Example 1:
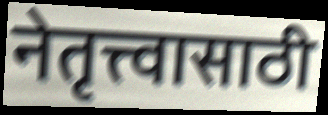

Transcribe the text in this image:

नेतृत्त्वासाठी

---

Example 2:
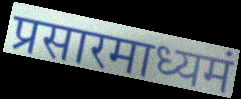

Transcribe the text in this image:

प्रसारमाध्यमं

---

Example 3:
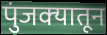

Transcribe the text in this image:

पुंजक्यातून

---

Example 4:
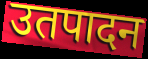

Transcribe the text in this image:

उतपादन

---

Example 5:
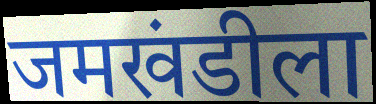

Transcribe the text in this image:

जमखंडीला